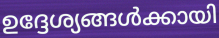
ഉദ്ദേശ്യങ്ങൾക്കായി